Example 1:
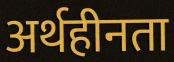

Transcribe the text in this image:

अर्थहीनता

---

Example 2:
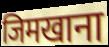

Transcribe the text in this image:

जिमखाना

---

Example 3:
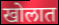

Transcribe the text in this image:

खोलात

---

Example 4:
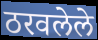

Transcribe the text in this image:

ठरवलेले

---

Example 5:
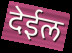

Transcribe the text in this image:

देईल